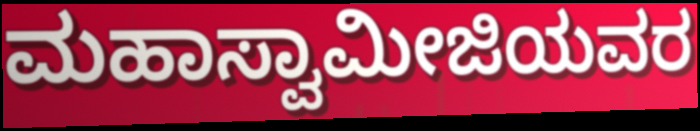
ಮಹಾಸ್ವಾಮೀಜಿಯವರ